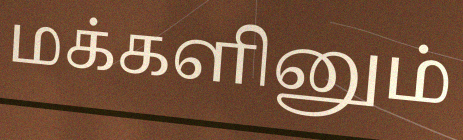
மக்களினும்